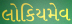
લોકિયમેવ